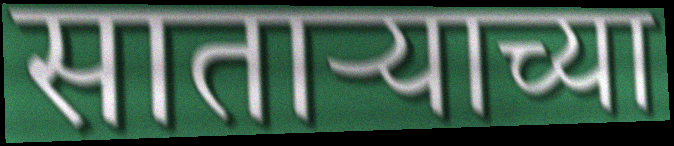
साताऱ्याच्या